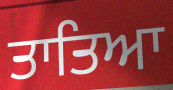
ਤਾਤਿਆ